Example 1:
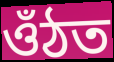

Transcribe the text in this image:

ওঁঠত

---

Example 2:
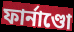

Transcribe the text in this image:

ফাৰ্নাণ্ডো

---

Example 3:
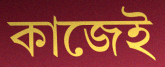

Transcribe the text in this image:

কাজেই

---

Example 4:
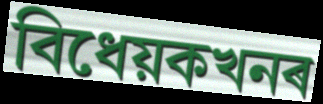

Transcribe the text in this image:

বিধেয়কখনৰ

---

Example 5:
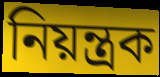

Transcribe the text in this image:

নিয়ন্ত্ৰক